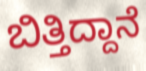
ಬಿತ್ತಿದ್ದಾನೆ